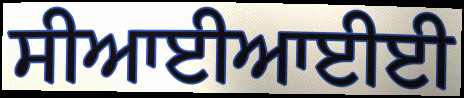
ਸੀਆਈਆਈਈ